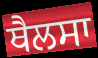
ਥੈਲਸਾ